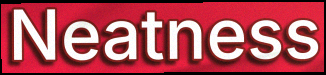
Neatness